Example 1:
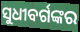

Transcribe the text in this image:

ସୁଧୀବର୍ଗଙ୍କର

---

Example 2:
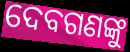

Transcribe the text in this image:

ଦେବଗଣଙ୍କୁ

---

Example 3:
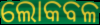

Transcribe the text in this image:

ଲୋକବଳ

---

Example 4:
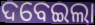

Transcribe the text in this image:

ଦବେଇଲା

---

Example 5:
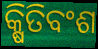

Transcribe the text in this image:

କ୍ଷିତିବଂଶ